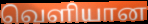
வெளியான